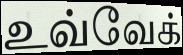
உவ்வேக்